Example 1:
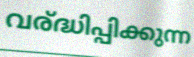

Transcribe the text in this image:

വര്ദ്ധിപ്പിക്കുന്ന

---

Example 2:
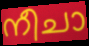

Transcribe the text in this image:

നീചാ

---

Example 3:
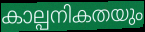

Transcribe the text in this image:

കാല്പനികതയും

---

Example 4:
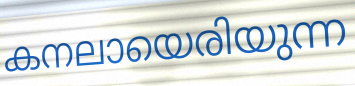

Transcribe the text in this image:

കനലായെരിയുന്ന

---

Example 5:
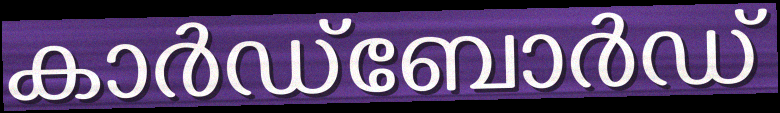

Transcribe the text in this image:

കാർഡ്ബോർഡ്